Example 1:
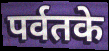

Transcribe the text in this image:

पर्वतके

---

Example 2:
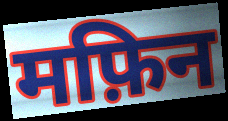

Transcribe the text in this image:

मफ़िन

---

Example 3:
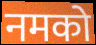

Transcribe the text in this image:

नमको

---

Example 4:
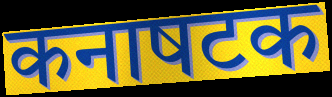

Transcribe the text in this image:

कनाषटक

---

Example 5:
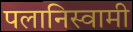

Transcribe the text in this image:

पलानिस्वामी